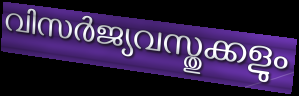
വിസർജ്യവസ്തുക്കളും